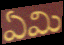
ఏమి